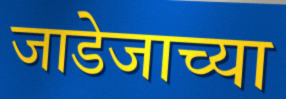
जाडेजाच्या